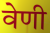
वेणी